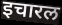
इचारल